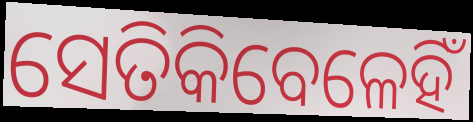
ସେତିକିବେଳେହିଁ